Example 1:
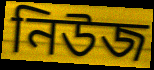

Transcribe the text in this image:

নিউজ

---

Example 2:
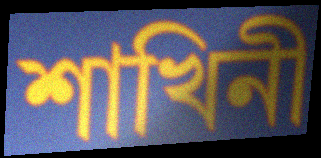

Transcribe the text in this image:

শাখিনী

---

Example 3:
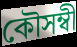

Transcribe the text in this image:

কৌসম্বী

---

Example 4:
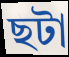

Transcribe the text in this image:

ছটা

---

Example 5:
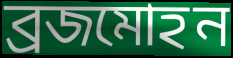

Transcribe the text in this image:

ব্ৰজমোহন